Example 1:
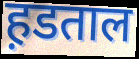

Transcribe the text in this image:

ह़डताल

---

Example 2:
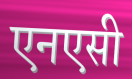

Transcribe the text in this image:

एनएसी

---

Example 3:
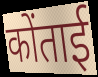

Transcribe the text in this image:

कोंताई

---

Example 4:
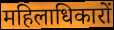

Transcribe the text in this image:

महिलाधिकारों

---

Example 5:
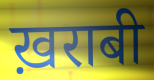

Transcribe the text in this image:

ख़राबी